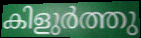
കിളുർത്തു